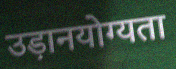
उड़ानयोग्यता